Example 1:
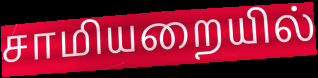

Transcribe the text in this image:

சாமியறையில்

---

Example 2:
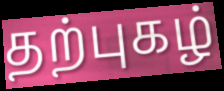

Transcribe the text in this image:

தற்புகழ்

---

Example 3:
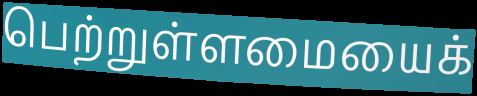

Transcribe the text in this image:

பெற்றுள்ளமையைக்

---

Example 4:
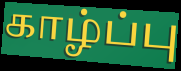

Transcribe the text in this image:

காழ்ப்பு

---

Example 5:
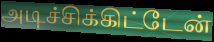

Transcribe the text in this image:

அடிச்சிக்கிட்டேன்